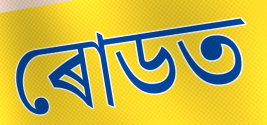
ৰোডত